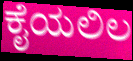
ಕೈಯಲಿಲ